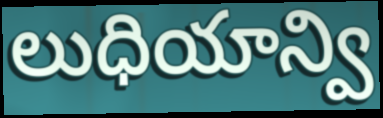
లుధియాన్వి